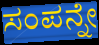
ಸಂಪನ್ನೇ